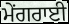
ਮੇਂਗਰਾਈ